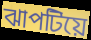
ঝাপটিয়ে